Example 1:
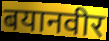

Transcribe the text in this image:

बयानवीर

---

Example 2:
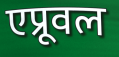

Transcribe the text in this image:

एप्रूवल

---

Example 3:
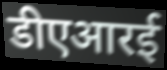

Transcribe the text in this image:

डीएआरई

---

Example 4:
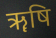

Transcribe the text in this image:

ॠषि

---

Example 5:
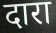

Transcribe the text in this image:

दारा